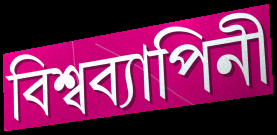
বিশ্বব্যাপিনী